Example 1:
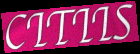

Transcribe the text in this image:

CITIIS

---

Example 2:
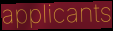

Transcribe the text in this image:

applicants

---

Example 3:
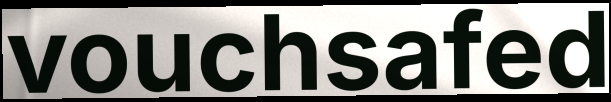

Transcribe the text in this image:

vouchsafed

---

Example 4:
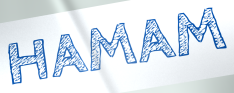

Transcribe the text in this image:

HAMAM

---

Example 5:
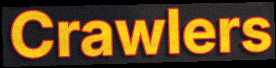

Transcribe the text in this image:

Crawlers